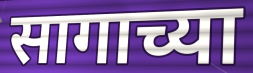
सागाच्या